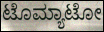
ಟೊಮ್ಯಾಟೋ